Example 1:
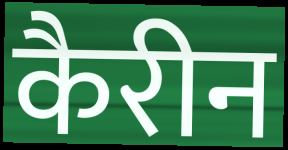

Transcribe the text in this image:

कैरीन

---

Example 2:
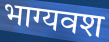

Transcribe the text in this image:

भाग्यवश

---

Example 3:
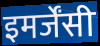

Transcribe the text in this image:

इमर्जेंसी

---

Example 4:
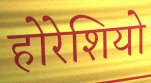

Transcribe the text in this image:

होरेशियो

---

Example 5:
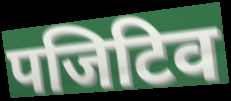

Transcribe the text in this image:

पजिटिव